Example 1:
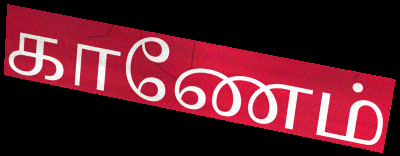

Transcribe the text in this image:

காணேம்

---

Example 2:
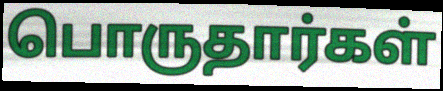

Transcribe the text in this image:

பொருதார்கள்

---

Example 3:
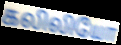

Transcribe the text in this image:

கலிலியோ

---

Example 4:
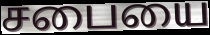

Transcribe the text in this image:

சபையை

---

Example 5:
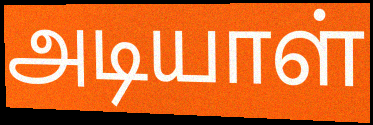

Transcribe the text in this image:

அடியாள்